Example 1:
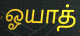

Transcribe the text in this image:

ஓயாத்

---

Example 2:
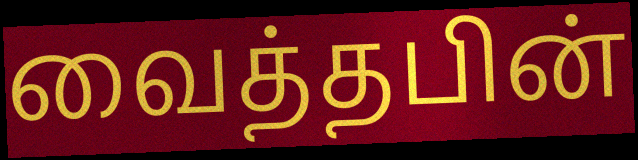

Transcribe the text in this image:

வைத்தபின்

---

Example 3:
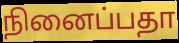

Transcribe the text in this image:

நினைப்பதா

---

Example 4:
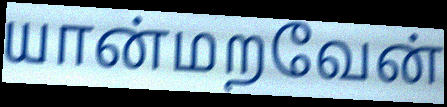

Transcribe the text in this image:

யான்மறவேன்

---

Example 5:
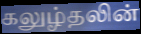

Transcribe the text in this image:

கலுழ்தலின்